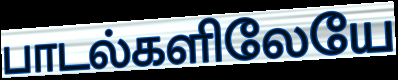
பாடல்களிலேயே